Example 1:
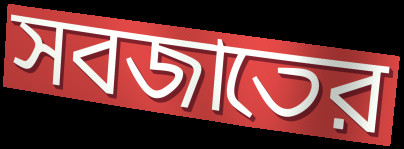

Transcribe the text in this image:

সবজাতের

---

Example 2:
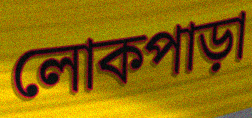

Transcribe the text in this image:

লোকপাড়া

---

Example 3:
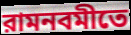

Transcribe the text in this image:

রামনবমীতে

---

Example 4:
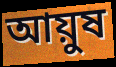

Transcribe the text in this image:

আয়ুষ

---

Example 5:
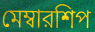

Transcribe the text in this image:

মেম্বারশিপ